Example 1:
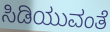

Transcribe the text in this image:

ಸಿಡಿಯುವಂತೆ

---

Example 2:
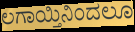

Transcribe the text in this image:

ಲಗಾಯ್ತಿನಿಂದಲೂ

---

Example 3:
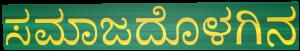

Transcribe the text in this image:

ಸಮಾಜದೊಳಗಿನ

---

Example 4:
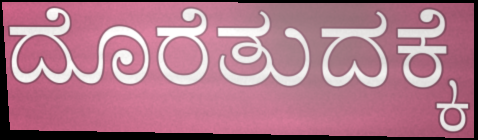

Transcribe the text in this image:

ದೊರೆತುದಕ್ಕೆ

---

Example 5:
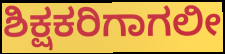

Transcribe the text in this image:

ಶಿಕ್ಷಕರಿಗಾಗಲೀ